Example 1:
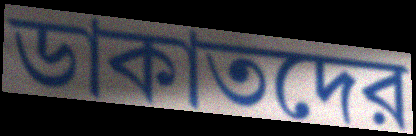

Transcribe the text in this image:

ডাকাতদের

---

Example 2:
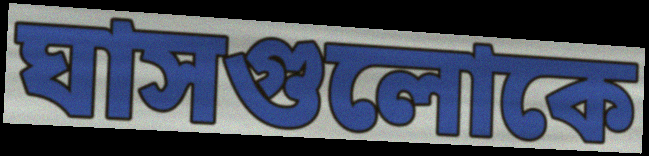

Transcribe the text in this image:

ঘাসগুলোকে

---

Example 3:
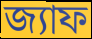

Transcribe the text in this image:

জ্যাফ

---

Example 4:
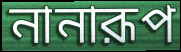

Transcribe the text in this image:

নানারূপ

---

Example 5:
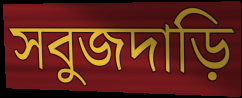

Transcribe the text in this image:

সবুজদাড়ি